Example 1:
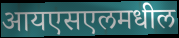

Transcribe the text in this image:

आयएसएलमधील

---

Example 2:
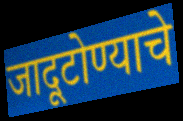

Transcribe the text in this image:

जादूटोण्याचे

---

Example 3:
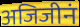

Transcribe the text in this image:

अजिजीनं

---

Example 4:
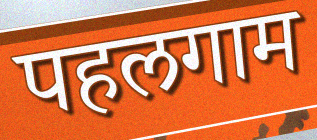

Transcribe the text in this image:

पहलगाम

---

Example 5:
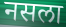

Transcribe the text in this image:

नसला